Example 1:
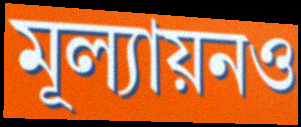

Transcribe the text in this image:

মূল্যায়নও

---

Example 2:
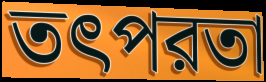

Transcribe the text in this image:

তৎপরতা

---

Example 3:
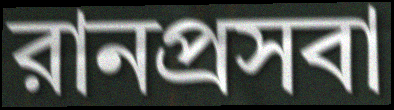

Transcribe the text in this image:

রানপ্রসবা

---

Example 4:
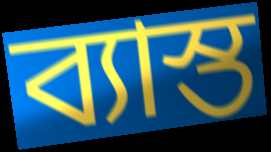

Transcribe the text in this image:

ব্যাস্ত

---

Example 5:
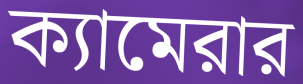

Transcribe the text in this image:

ক্যামেরার